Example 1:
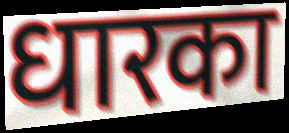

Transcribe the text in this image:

धारका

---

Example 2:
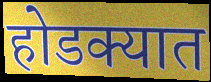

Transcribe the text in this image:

होडक्यात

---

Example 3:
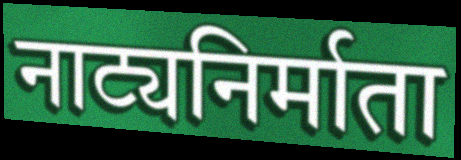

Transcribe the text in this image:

नाट्यनिर्माता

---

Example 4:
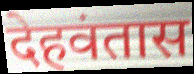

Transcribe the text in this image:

देहवंतास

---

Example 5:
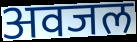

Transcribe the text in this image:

अवजल